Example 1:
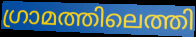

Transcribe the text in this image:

ഗ്രാമത്തിലെത്തി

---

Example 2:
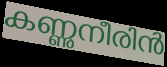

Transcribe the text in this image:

കണ്ണുനീരിൻ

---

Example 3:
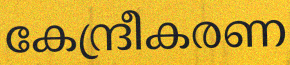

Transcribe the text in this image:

കേന്ദ്രീകരണ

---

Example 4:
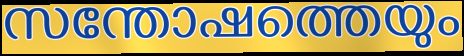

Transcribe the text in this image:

സന്തോഷത്തെയും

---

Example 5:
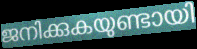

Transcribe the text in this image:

ജനിക്കുകയുണ്ടായി